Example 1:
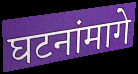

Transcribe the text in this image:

घटनांमागे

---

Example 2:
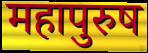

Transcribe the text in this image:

महापुरुष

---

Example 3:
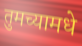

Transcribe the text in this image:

तुमच्यामधे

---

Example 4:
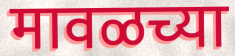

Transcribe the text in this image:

मावळच्या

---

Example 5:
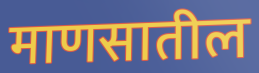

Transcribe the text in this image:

माणसातील